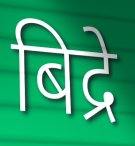
बिद्रे